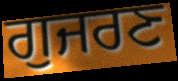
ਗੁਜਰਣ